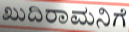
ಖುದಿರಾಮನಿಗೆ